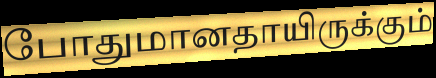
போதுமானதாயிருக்கும்